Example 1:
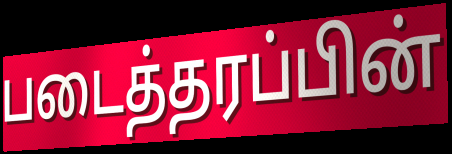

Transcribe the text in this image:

படைத்தரப்பின்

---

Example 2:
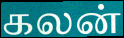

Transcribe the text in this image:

கலன்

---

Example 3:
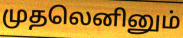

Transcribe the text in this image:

முதலெனினும்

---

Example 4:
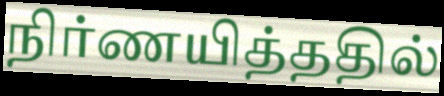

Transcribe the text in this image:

நிர்ணயித்ததில்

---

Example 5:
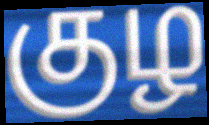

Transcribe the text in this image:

குழ